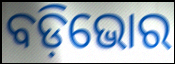
ବଡ଼ିଭୋର